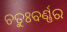
ଚତୁଃବର୍ଣ୍ଣର